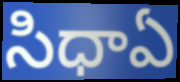
సిధాఏ